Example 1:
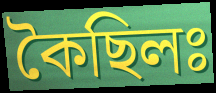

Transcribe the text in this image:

কৈছিলঃ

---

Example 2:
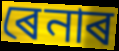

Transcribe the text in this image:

ৰেনাৰ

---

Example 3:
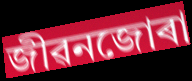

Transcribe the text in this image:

জীৱনজোৰা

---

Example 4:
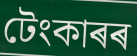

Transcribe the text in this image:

টেংকাৰৰ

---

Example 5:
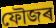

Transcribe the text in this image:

ফৌজৰ